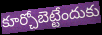
కూర్చోబెట్టేందుకు